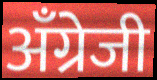
अँग्रेजी